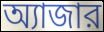
অ্যাজার